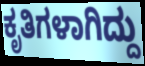
ಕೃತಿಗಳಾಗಿದ್ದು